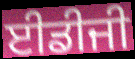
ਈਡੀਜੀ